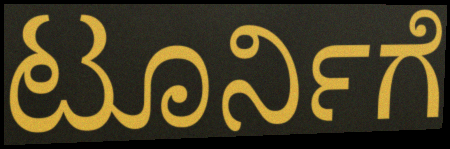
ಟೂರ್ನಿಗೆ